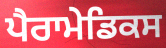
ਪੈਰਾਮੇਡਿਕਸ